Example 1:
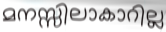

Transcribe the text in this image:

മനസ്സിലാകാറില്ല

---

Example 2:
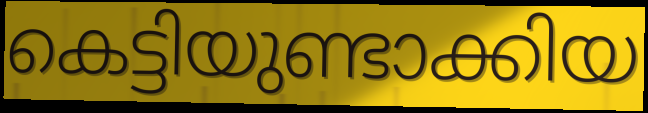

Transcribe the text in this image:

കെട്ടിയുണ്ടാക്കിയ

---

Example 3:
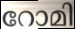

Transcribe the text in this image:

റോമി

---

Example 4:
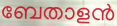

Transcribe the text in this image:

ബേതാളൻ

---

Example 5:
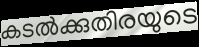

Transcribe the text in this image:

കടൽക്കുതിരയുടെ